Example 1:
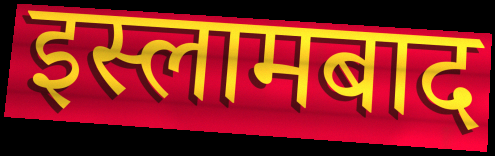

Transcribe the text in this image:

इस्लामबाद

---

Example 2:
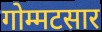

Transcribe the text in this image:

गोम्मटसार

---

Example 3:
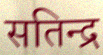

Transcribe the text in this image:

सतिन्द्र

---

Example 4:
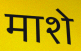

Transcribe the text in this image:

माशे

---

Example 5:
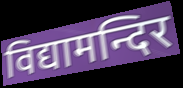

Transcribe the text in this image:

विद्यामन्दिर